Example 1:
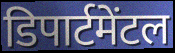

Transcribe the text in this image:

डिपार्टमेंटल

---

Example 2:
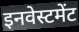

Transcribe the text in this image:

इनवेस्टमेंट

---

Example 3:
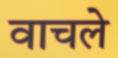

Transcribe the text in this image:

वाचले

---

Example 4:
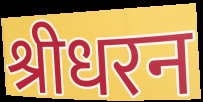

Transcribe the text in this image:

श्रीधरन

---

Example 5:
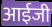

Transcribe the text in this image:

आईजी